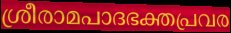
ശ്രീരാമപാദഭക്തപ്രവര